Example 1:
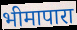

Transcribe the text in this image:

भीमापारा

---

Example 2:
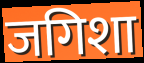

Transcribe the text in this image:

जगिशा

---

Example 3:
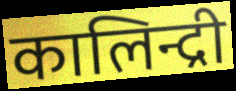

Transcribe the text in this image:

कालिन्द्री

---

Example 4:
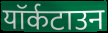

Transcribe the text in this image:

यॉर्कटाउन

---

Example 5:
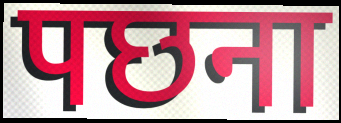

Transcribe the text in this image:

पछना